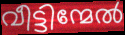
വീട്ടിന്മേൽ